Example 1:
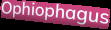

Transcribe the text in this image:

Ophiophagus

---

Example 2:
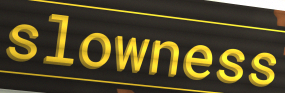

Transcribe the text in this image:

slowness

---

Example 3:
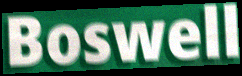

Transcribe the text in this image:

Boswell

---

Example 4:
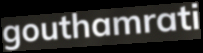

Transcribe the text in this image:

gouthamrati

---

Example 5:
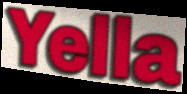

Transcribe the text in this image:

Yella